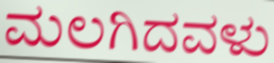
ಮಲಗಿದವಳು